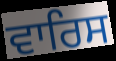
ਵਾਰਿਸ